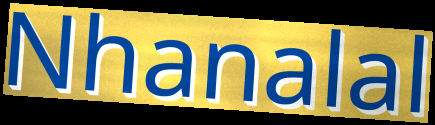
Nhanalal